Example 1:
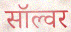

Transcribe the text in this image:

सॉल्वर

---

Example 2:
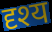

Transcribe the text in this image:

दृश्‍य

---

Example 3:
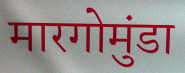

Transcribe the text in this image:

मारगोमुंडा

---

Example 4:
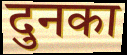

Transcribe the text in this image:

दुनका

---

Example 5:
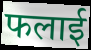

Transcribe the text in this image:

फलाई